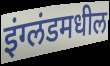
इंग्लंडमधील